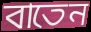
বাতেন